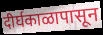
दीर्घकाळापासून